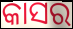
କାସର